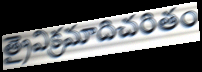
త్రైవిక్రమాదిచరితం